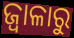
ଜ୍ଵାଳାରୁ